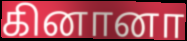
கினானா